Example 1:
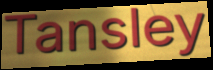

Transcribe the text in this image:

Tansley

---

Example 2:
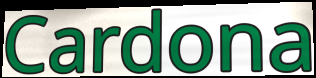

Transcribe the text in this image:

Cardona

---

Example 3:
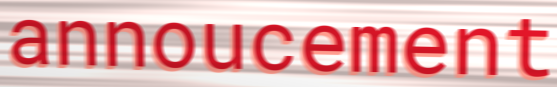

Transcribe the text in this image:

annoucement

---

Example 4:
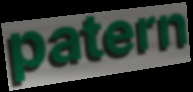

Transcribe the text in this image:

patern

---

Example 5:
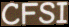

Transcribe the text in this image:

CFSI